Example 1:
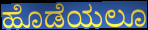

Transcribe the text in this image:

ಹೊಡೆಯಲೂ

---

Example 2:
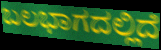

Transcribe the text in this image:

ಬಲಭಾಗದಲ್ಲಿದೆ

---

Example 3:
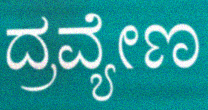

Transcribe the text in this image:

ದ್ರವ್ಯೇಣ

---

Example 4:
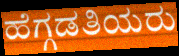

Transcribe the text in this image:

ಹೆಗ್ಗಡತಿಯರು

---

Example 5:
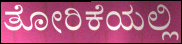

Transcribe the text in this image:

ತೋರಿಕೆಯಲ್ಲಿ